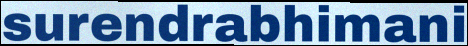
surendrabhimani